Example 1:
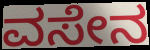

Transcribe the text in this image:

ವಸೇನ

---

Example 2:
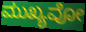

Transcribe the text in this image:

ಮುಖ್ಯವೋ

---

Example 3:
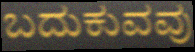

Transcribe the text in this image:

ಬದುಕುವವು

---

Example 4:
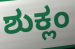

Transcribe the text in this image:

ಶುಕ್ಲಂ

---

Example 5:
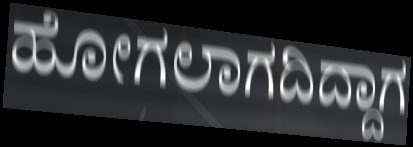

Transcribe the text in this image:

ಹೋಗಲಾಗದಿದ್ದಾಗ